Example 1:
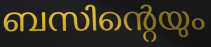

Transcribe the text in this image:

ബസിന്റെയും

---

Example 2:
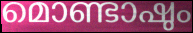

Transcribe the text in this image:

മൊണ്ടാഷും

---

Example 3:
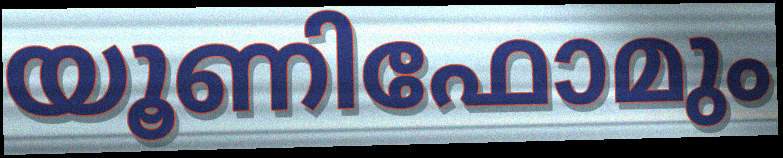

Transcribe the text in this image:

യൂണിഫോമും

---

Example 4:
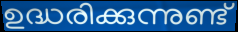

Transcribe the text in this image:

ഉദ്ധരിക്കുന്നുണ്ട്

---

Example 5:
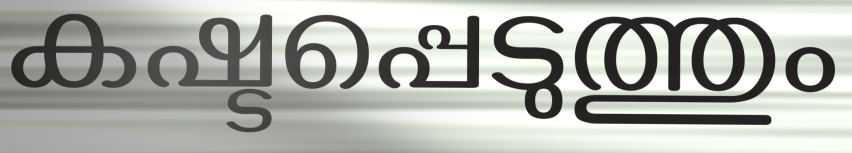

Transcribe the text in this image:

കഷ്ടപ്പെടുത്തും